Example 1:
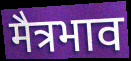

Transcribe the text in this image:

मैत्रभाव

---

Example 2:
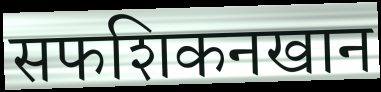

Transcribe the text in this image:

सफशिकनखान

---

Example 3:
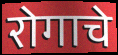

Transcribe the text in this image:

रोगाचे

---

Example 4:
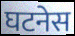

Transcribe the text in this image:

घटनेस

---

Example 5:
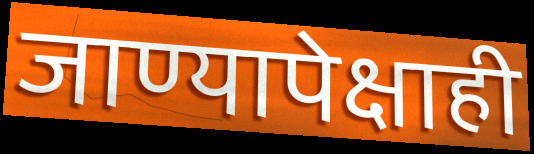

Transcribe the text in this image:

जाण्यापेक्षाही